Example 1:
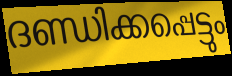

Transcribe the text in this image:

ദണ്ഡിക്കപ്പെട്ടും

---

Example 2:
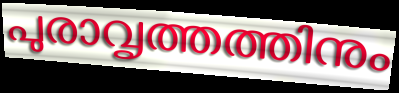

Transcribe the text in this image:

പുരാവൃത്തത്തിനും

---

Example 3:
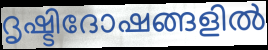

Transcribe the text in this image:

ദൃഷ്ടിദോഷങ്ങളിൽ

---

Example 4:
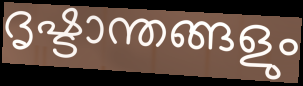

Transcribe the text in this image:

ദൃഷ്ടാന്തങ്ങളും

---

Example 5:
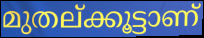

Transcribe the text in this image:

മുതല്ക്കൂട്ടാണ്